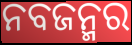
ନବଜନ୍ମର